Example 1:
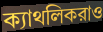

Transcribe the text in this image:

ক্যাথলিকরাও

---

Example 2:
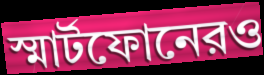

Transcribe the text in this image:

স্মার্টফোনেরও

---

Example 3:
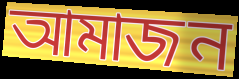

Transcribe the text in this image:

আমাজন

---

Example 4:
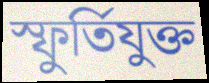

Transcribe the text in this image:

স্ফুর্তিযুক্ত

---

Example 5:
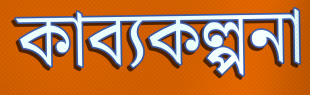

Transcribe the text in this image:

কাব্যকল্পনা